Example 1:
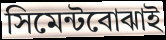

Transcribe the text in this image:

সিমেন্টবোঝাই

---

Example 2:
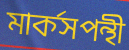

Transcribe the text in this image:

মার্কসপন্থী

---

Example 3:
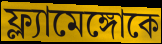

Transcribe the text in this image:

ফ্ল্যামেঙ্গোকে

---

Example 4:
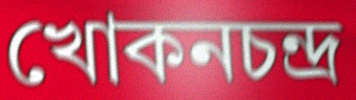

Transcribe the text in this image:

খোকনচন্দ্র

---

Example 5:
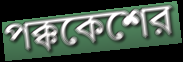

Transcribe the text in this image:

পক্ককেশের